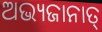
ଅଭ୍ୟଜାନାତ୍